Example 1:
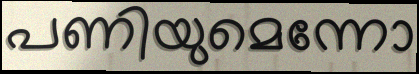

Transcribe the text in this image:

പണിയുമെന്നോ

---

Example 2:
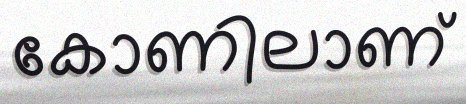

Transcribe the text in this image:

കോണിലാണ്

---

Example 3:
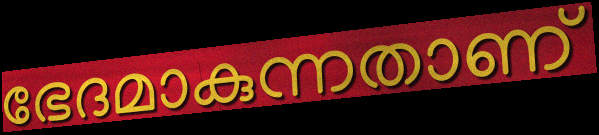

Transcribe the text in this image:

ഭേദമാകുന്നതാണ്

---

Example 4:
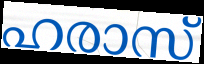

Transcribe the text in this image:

ഹരാസ്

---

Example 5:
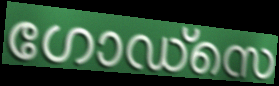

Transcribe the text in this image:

ഗോഡ്സെ